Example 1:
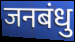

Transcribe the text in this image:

जनबंधु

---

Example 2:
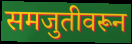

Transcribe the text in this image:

समजुतीवरून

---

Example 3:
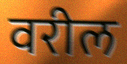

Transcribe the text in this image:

वरील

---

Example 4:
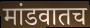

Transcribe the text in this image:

मांडवातच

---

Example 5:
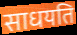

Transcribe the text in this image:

साधयति